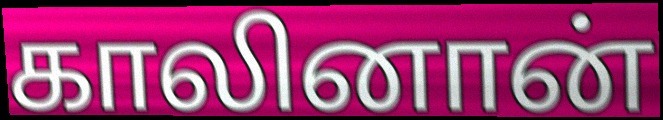
காலினான்